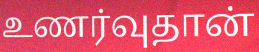
உணர்வுதான்